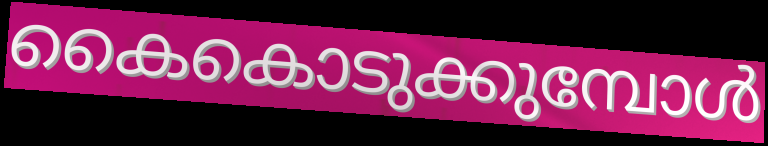
കൈകൊടുക്കുമ്പോൾ